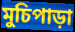
মুচিপাড়া